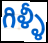
గిళ్ళీ